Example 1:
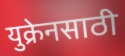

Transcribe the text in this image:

युक्रेनसाठी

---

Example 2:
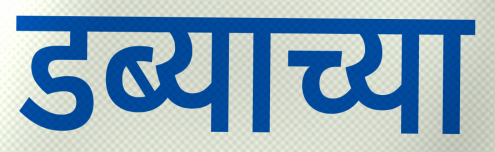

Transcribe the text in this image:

डब्याच्या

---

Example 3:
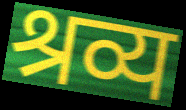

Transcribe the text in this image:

श्रव्य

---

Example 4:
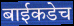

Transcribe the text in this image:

बाईकडेच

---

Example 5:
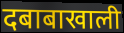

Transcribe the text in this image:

दबाबाखाली